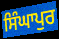
ਸਿੰਘਾਪੁਰ